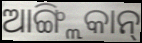
ଆଙ୍ଗ୍ଲିକାନ୍